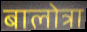
बालोत्रा